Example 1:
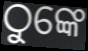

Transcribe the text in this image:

ଠୁଙ୍କେ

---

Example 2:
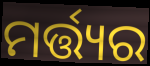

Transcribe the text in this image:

ମର୍ତ୍ତ୍ୟର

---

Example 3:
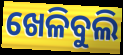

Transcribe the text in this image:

ଖେଳିବୁଲି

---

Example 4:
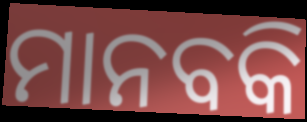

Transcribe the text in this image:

ମାନବକି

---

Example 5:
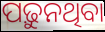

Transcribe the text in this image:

ପଢ଼ୁନଥିବା